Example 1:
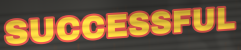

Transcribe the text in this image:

SUCCESSFUL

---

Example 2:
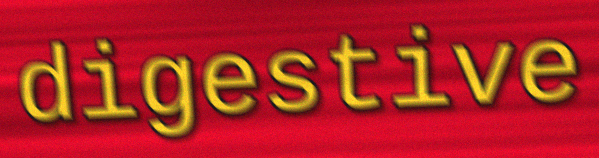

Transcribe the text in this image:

digestive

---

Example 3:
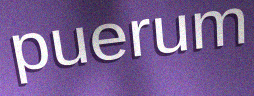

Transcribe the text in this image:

puerum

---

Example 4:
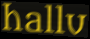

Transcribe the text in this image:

hallu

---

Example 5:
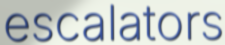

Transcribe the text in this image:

escalators